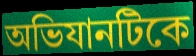
অভিযানটিকে